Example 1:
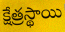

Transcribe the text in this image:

క్షేత్రస్థాయి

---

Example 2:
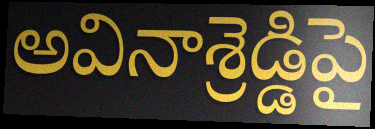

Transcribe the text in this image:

అవినాశ్రెడ్డిపై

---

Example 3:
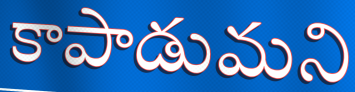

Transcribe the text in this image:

కాపాడుమని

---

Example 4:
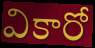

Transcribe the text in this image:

వికారో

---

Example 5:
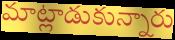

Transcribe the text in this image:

మాట్లాడుకున్నారు